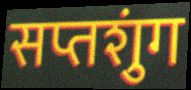
सप्तश्रुंग